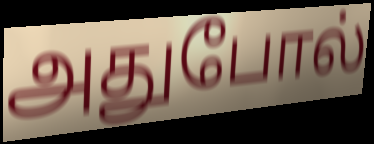
அதுபோல்